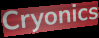
Cryonics